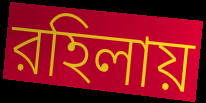
রহিলায়